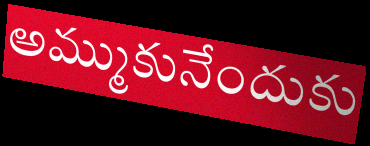
అమ్ముకునేందుకు